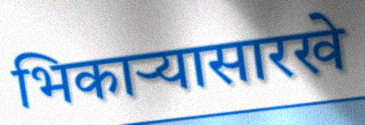
भिकार्‍यासारखे